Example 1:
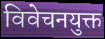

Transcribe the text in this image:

विवेचनयुक्त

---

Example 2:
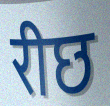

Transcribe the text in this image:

रीछ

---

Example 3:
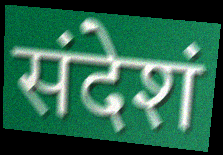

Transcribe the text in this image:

संदेशं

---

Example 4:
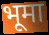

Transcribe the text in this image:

भूमा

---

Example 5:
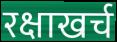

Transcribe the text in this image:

रक्षाखर्च